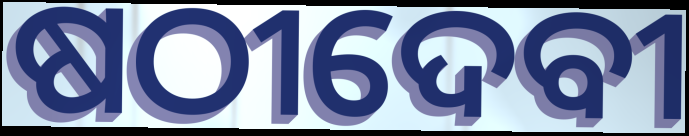
ଷଠୀଦେବୀ